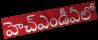
హెచ్ఎండీఏలో